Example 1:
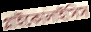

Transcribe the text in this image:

গ্লাইকোলাইসিস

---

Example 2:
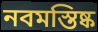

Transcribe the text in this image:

নবমস্তিষ্ক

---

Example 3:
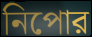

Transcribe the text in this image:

নিপোর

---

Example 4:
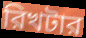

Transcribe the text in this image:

রিখটার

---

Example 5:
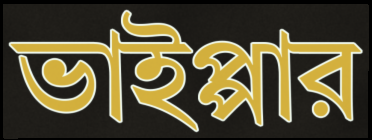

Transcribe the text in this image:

ভাইপ্পার